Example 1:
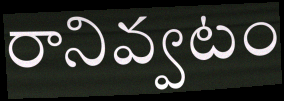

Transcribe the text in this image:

రానివ్వటం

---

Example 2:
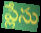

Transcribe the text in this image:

ప్లేసు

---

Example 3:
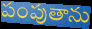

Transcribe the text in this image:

పంపుతాను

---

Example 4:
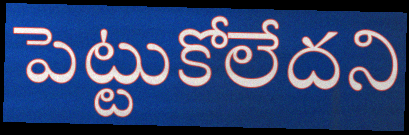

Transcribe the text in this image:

పెట్టుకోలేదని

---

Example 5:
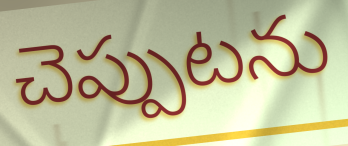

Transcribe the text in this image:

చెప్పుటను